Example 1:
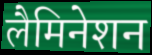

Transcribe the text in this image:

लैमिनेशन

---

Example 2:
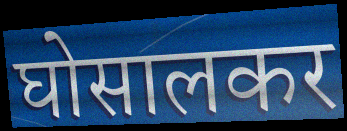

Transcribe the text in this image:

घोसालकर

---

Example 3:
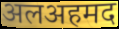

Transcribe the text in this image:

अलअहमद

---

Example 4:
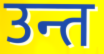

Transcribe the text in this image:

उन्त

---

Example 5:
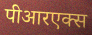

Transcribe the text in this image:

पीआरएक्स